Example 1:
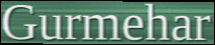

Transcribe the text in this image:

Gurmehar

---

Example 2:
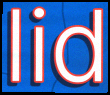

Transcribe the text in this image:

lid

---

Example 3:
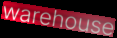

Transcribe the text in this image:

warehouse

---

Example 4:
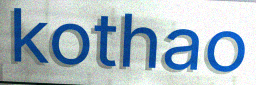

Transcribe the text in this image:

kothao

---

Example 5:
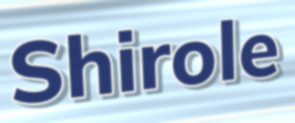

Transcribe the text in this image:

Shirole